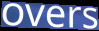
overs